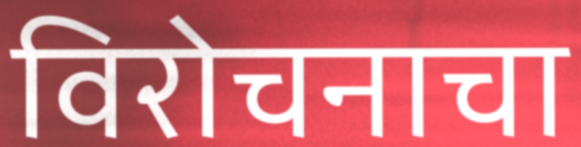
विरोचनाचा